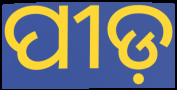
ପୀଡ଼